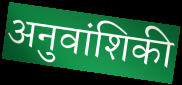
अनुवांशिकी